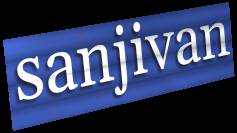
sanjivan